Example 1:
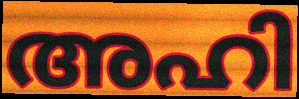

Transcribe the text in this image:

അഹി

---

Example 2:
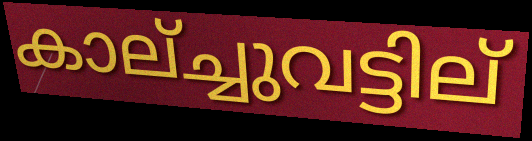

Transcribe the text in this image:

കാല്ച്ചുവട്ടില്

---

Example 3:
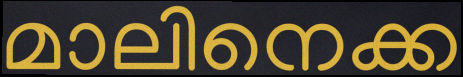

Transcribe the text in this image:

മാലിനെക്ക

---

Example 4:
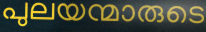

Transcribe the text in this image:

പുലയന്മാരുടെ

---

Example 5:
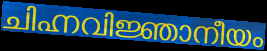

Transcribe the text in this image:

ചിഹ്നവിജ്ഞാനീയം